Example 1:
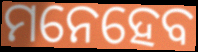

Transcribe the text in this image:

ମନେହେବ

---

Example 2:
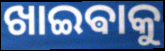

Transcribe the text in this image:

ଖାଇଵାକୁ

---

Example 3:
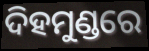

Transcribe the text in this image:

ଦିହମୁଣ୍ଡରେ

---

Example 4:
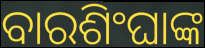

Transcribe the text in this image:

ବାରଶିଂଘାଙ୍କ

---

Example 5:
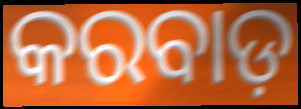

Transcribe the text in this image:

କରବାଡ଼